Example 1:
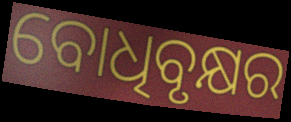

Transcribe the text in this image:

ବୋଧିବୃକ୍ଷର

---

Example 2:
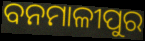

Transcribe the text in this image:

ବନମାଳୀପୁର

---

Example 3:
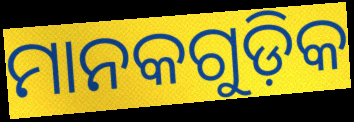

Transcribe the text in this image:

ମାନକଗୁଡ଼ିକ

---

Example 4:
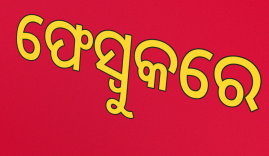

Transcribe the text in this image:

ଫେସ୍ବୁକରେ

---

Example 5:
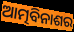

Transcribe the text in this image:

ଆତ୍ମବିନାଶର